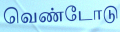
வெண்டோடு